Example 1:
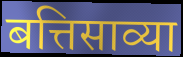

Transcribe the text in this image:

बत्तिसाव्या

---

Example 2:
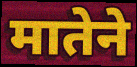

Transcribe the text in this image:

मातेने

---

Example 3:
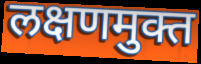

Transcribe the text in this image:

लक्षणमुक्त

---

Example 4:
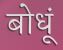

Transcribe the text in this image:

बोधूं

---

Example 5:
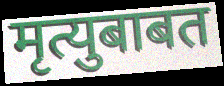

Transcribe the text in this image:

मृत्युबाबत